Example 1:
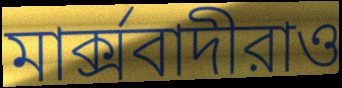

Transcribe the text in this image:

মার্ক্সবাদীরাও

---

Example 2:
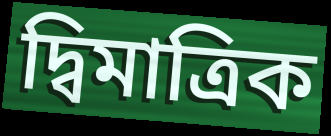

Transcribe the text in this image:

দ্বিমাত্রিক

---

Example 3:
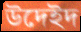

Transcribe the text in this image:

উদেইদ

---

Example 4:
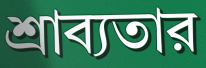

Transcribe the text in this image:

শ্রাব্যতার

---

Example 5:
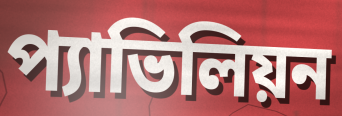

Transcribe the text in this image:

প্যাভিলিয়ন